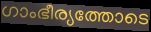
ഗാംഭീര്യത്തോടെ